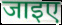
जाइए